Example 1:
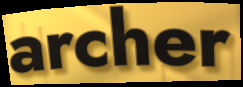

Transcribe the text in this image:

archer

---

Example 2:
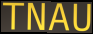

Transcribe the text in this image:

TNAU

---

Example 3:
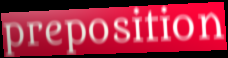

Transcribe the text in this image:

preposition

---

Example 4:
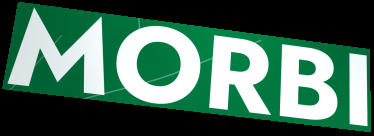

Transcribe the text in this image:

MORBI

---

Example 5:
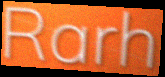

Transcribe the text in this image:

Rarh